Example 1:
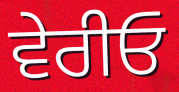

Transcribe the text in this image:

ਵੇਰੀਓ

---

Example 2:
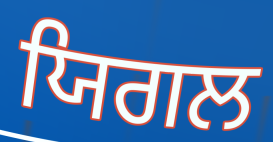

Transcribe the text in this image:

ਯਿਗਲ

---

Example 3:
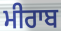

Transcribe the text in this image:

ਮੀਰਾਬ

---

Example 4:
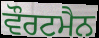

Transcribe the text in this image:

ਵੌਰਟਮੈਨ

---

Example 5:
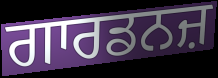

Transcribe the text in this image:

ਗਾਰਡਨਜ਼